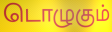
டொழுகும்